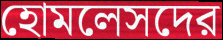
হোমলেসদের